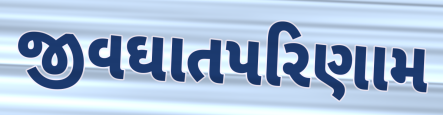
જીવઘાતપરિણામ